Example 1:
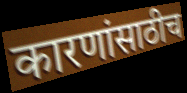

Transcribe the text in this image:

कारणांसाठीच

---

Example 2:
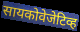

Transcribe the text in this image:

सायकोवेजेटिव्ह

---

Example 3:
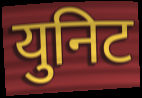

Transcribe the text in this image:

युनिट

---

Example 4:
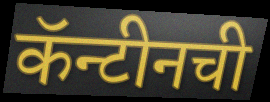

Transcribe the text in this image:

कॅन्टीनची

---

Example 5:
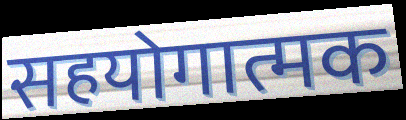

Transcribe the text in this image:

सहयोगात्मक